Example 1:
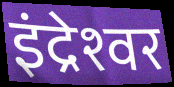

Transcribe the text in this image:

इंद्रेश्वर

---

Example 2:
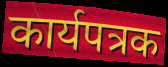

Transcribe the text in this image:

कार्यपत्रक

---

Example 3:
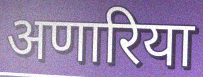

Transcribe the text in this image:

अणारिया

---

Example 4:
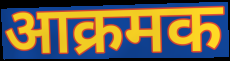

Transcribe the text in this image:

आक्रमक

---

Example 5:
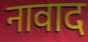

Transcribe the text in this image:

नावाद